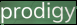
prodigy